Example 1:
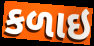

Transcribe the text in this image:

કળાઇ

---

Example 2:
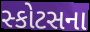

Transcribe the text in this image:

સ્કોટસના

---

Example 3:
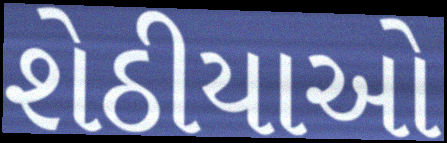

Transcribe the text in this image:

શેઠીયાઓ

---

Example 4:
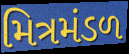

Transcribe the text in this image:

મિત્રમંડળ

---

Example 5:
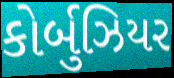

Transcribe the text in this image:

કોર્બુઝિયર